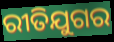
ରୀତିଯୁଗର